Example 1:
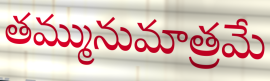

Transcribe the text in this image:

తమ్మునుమాత్రమే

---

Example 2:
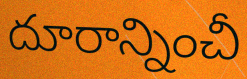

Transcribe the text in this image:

దూరాన్నించీ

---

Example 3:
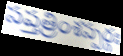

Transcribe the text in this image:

సప్తత్రింశస్సర్గః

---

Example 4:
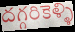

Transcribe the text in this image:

దగ్గరికెళ్ళి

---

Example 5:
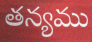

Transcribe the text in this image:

తన్యము